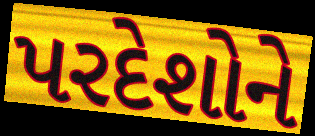
પરદેશોને